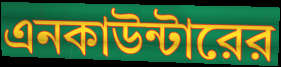
এনকাউন্টারের